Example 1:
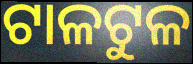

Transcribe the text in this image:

ଟାଳଟୁଳ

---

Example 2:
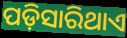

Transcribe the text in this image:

ପଡ଼ିସାରିଥାଏ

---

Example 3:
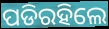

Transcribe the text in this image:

ପଡିରହିଲେ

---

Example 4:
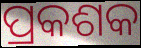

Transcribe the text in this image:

ପ୍ରକଶକ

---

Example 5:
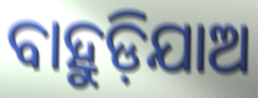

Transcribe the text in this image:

ବାହୁଡ଼ିଯାଅ